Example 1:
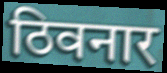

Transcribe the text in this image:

ठिवनार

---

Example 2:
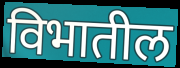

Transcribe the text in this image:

विभातील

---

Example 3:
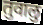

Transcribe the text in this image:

तुवालु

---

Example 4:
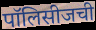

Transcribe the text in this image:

पॉलिसीजची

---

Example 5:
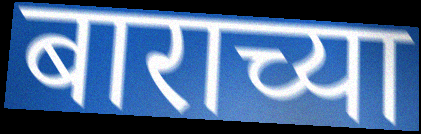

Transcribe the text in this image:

बाराच्या